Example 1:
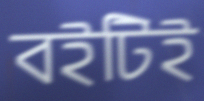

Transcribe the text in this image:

বইটিই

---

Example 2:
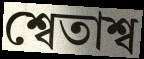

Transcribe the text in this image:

শ্বেতাশ্ব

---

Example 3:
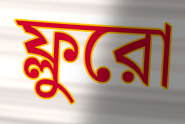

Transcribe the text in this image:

ফ্লুরো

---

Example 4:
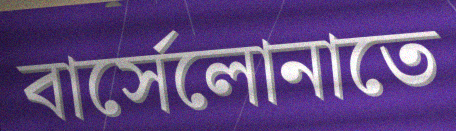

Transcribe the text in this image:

বার্সেলোনাতে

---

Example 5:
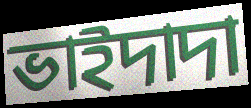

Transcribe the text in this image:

ভাইদাদা